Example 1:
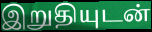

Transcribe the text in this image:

இறுதியுடன்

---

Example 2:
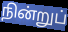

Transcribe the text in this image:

நின்றுப்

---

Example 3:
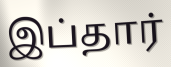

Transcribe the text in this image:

இப்தார்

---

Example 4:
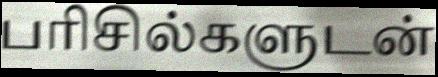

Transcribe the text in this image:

பரிசில்களுடன்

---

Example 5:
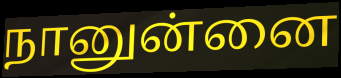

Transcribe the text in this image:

நானுன்னை